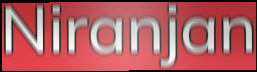
Niranjan